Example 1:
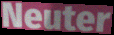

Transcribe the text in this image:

Neuter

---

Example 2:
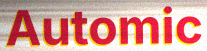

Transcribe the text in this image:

Automic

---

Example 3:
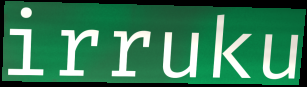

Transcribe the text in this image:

irruku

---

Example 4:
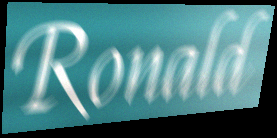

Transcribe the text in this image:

Ronald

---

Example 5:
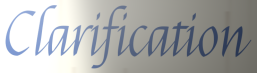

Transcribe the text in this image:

Clarification